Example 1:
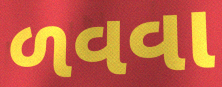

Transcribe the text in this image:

ળવવા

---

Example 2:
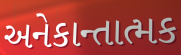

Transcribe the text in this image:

અનેકાન્તાત્મક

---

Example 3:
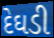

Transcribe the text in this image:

દેઘડી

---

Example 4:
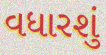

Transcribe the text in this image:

વધારશું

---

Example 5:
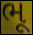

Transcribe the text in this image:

ભૂ